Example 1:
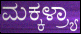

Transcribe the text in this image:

ಮಕ್ಕಳ್ರ್ಯಾ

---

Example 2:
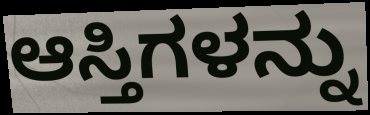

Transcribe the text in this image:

ಆಸ್ತಿಗಳನ್ನು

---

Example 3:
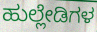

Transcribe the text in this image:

ಹುಲ್ಲೇಡಿಗಳ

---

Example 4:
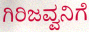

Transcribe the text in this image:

ಗಿರಿಜವ್ವನಿಗೆ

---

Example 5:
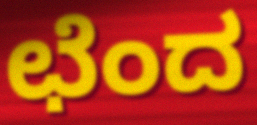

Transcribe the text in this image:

ಛೆಂದ